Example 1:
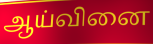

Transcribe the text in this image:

ஆய்வினை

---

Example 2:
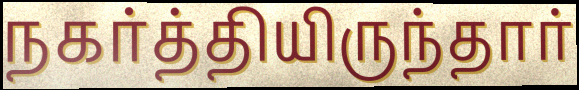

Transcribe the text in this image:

நகர்த்தியிருந்தார்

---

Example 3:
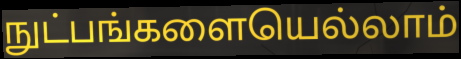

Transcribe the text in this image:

நுட்பங்களையெல்லாம்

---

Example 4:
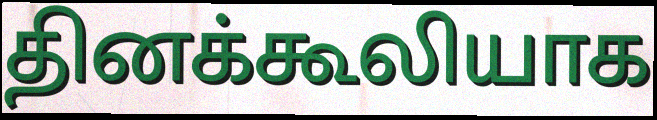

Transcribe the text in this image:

தினக்கூலியாக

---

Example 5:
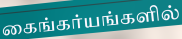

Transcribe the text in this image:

கைங்கர்யங்களில்